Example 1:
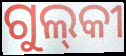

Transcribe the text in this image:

ଗୁଲ୍‌କୀ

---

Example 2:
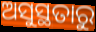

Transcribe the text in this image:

ଅସୁସ୍ଥତାରୁ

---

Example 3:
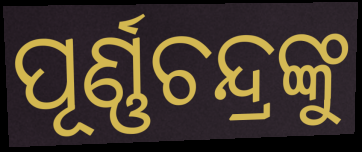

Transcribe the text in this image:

ପୂର୍ଣ୍ଣଚନ୍ଦ୍ରଙ୍କୁ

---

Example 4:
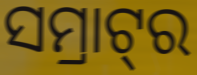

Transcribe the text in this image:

ସମ୍ରାଟ୍‌ର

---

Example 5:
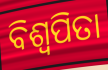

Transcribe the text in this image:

ବିଶ୍ଵପିତା